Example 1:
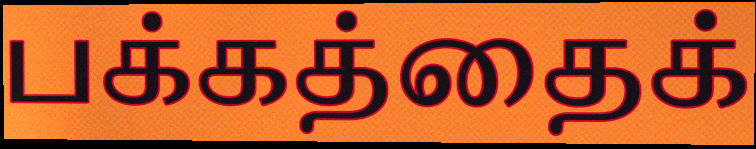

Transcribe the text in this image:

பக்கத்தைக்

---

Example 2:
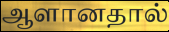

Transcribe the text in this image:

ஆளானதால்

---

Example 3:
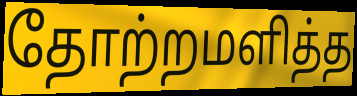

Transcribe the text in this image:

தோற்றமளித்த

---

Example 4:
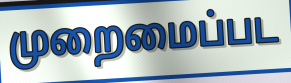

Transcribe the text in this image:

முறைமைப்பட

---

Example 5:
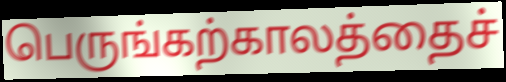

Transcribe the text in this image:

பெருங்கற்காலத்தைச்